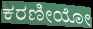
ಕರಣೀಯೋ